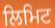
ਲਿਮਿਟ